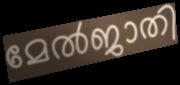
മേൽജാതി